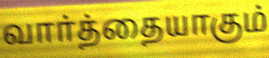
வார்த்தையாகும்